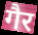
गैर